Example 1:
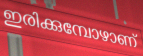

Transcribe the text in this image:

ഇരിക്കുമ്പോഴാണ്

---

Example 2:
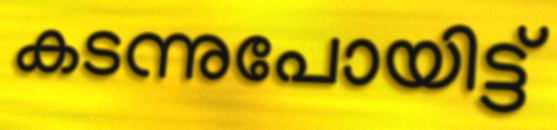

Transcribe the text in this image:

കടന്നുപോയിട്ട്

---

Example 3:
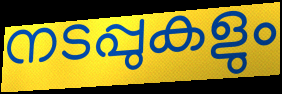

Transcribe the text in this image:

നടപ്പുകളും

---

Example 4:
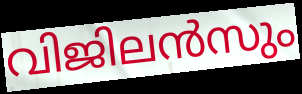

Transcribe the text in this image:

വിജിലൻസും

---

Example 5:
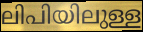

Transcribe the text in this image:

ലിപിയിലുള്ള